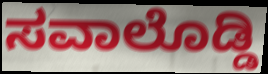
ಸವಾಲೊಡ್ಡಿ